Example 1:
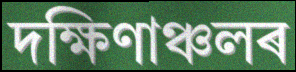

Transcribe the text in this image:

দক্ষিণাঞ্চলৰ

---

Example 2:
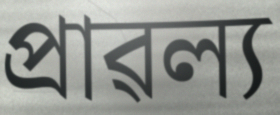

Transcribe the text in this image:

প্ৰাৱল্য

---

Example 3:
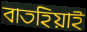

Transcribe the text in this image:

বাতহিয়াই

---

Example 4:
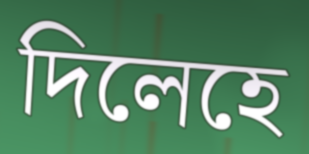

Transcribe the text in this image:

দিলেহে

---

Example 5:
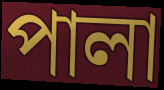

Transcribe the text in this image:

পালা